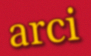
arci